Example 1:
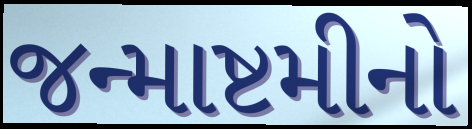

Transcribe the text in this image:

જન્માષ્ટમીનો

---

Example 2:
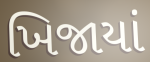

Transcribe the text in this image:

ખિજાયાં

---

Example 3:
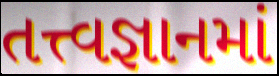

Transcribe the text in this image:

તત્ત્વજ્ઞાનમાં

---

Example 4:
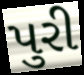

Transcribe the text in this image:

પુરી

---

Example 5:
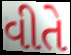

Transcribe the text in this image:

વીતે